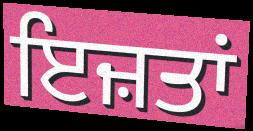
ਇਜ਼ਤਾਂ